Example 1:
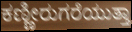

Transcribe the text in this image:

ಕಣ್ಣೀರುಗರೆಯುತ್ತಾ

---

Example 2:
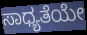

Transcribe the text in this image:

ಸಾಧ್ಯತೆಯೇ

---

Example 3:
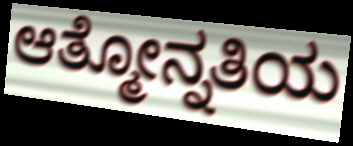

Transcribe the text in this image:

ಆತ್ಮೋನ್ನತಿಯ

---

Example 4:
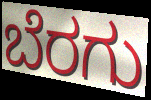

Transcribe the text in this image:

ಬೆರಗು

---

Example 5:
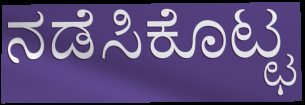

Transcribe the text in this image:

ನಡೆಸಿಕೊಟ್ಟ